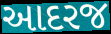
આદરજ